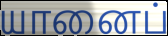
யானைப்